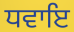
ਧਵਾਇ